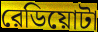
রেডিয়োটা